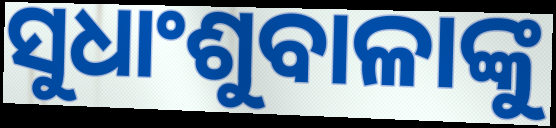
ସୁଧାଂଶୁବାଳାଙ୍କୁ